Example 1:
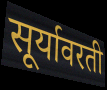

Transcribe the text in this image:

सूर्यावरती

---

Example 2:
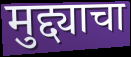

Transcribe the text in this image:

मुद्द्याचा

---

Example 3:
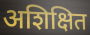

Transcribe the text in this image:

अशिक्षित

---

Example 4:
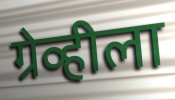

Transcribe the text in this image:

ग्रेव्हीला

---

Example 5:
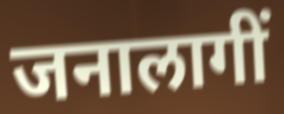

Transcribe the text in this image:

जनालागीं